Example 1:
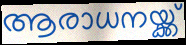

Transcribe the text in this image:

ആരാധനയ്ക്ക്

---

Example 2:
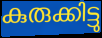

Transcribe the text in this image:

കുരുക്കിട്ടു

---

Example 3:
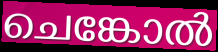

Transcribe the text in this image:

ചെങ്കോൽ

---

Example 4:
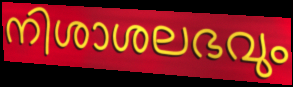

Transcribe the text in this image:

നിശാശലഭവും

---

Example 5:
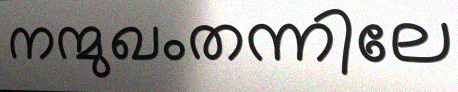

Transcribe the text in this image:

നന്മുഖംതന്നിലേ